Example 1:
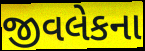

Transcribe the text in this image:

જીવલેકના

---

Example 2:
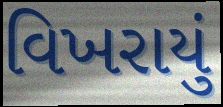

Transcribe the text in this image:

વિખરાયું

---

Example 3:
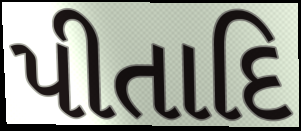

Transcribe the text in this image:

પીતાદિ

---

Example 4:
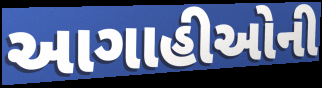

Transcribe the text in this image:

આગાહીઓની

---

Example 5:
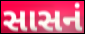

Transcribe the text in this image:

સાસનં